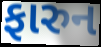
ફારુન